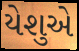
યેશુએ